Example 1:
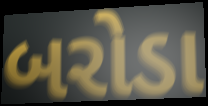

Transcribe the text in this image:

બરોડા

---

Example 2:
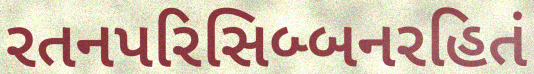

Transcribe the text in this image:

રતનપરિસિબ્બનરહિતં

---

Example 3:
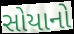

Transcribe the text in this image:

સોયાનો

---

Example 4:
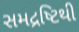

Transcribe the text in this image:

સમદ્રષ્ટિથી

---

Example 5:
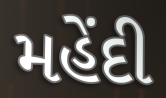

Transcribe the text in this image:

મહેંદી